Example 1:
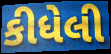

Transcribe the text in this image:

કીધેલી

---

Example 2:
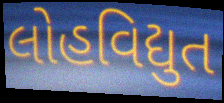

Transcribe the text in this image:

લોહવિદ્યુત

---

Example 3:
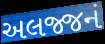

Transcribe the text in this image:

અલજ્જનં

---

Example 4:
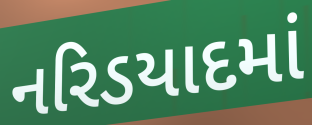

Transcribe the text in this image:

નરિડયાદમાં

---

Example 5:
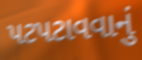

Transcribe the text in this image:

પટપટાવવાનું